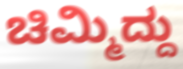
ಚಿಮ್ಮಿದ್ದು